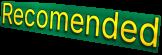
Recomended